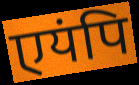
एयंपि